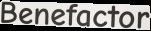
Benefactor